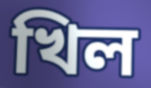
খিল